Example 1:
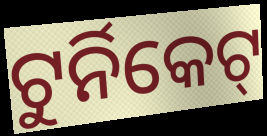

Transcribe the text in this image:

ଟୁର୍ନିକେଟ୍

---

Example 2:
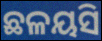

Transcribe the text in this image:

ଛଳୟସି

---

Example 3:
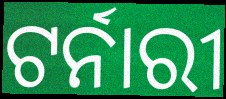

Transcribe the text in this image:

ଟର୍ନାରୀ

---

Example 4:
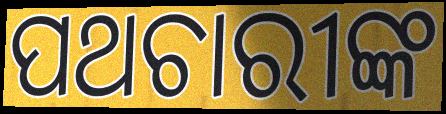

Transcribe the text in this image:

ପଥଚାରୀଙ୍କ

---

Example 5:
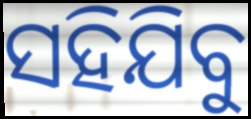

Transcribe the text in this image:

ସହିଯିବୁ